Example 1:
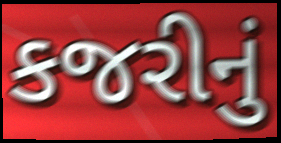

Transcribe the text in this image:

કજરીનું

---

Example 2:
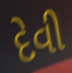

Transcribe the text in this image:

દેવી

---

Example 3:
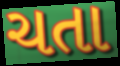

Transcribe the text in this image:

ચતા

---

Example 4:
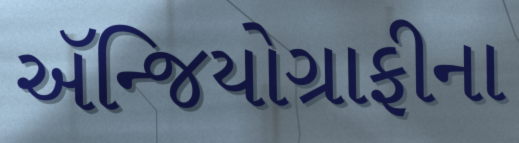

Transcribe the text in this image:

ઍન્જિયોગ્રાફીના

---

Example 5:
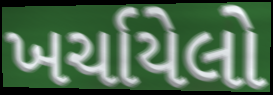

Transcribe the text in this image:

ખર્ચાયેલો